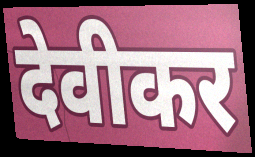
देवीकर